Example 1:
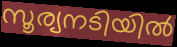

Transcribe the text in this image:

സൂര്യനടിയിൽ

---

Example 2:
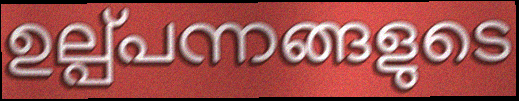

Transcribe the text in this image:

ഉല്പ്പന്നങ്ങളുടെ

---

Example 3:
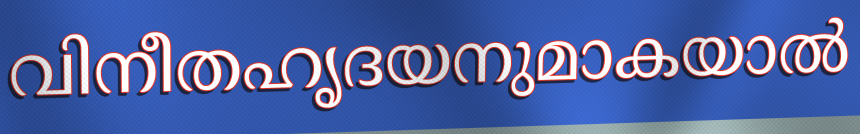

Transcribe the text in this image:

വിനീതഹൃദയനുമാകയാൽ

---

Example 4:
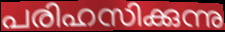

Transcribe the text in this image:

പരിഹസിക്കുന്നു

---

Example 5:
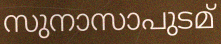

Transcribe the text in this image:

സുനാസാപുടമ്